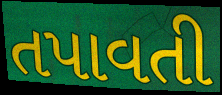
તપાવતી